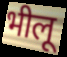
भीलू